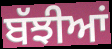
ਬੱਝੀਆਂ